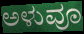
ಅಳುವೂ